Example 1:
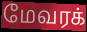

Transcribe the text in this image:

மேவரக்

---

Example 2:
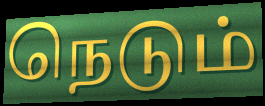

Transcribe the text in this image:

நெடும்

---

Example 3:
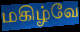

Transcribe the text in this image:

மகிழ்வே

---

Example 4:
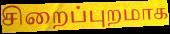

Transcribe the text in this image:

சிறைப்புறமாக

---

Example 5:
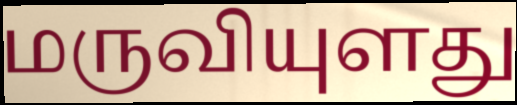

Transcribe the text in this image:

மருவியுளது